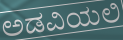
ಅಡವಿಯಲಿ